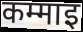
कम्माइ